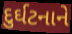
દુર્ઘટનાને